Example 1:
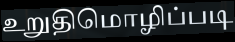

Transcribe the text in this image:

உறுதிமொழிப்படி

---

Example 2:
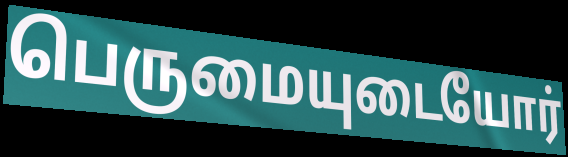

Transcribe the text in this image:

பெருமையுடையோர்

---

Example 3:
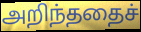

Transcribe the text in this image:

அறிந்ததைச்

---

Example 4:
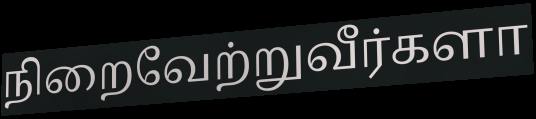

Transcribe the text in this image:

நிறைவேற்றுவீர்களா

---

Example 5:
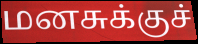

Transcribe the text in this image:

மனசுக்குச்